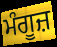
ਮੰਗੂਜ਼